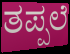
ತಪ್ಪಲೆ